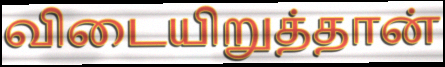
விடையிறுத்தான்